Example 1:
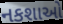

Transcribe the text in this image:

નકશાઓ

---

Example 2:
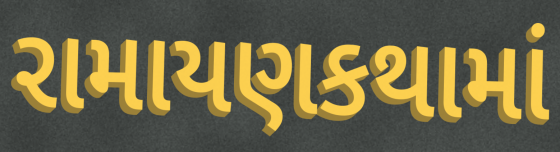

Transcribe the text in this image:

રામાયણકથામાં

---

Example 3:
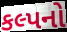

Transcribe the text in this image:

કલ્પનો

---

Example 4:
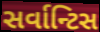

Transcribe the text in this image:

સર્વાન્ટિસ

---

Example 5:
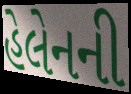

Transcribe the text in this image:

હેલેનની